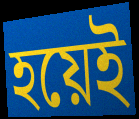
হয়েই